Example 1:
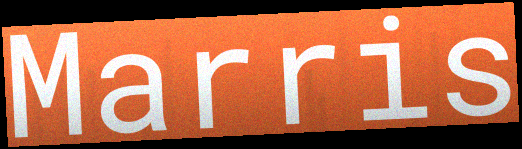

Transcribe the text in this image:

Marris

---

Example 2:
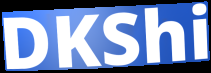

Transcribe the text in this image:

DKShi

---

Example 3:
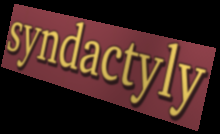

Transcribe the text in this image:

syndactyly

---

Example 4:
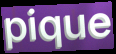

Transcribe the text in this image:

pique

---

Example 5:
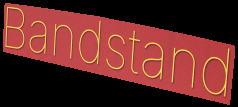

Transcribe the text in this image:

Bandstand